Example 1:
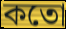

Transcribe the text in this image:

কতো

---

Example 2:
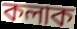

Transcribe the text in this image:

কলাক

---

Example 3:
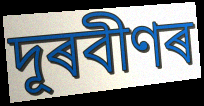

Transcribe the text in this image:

দূৰবীণৰ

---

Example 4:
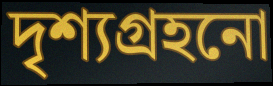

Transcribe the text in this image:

দৃশ্যগ্ৰহনো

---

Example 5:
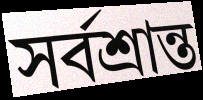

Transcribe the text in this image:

সৰ্বশ্ৰান্ত